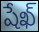
షేఖ్